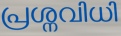
പ്രശ്നവിധി